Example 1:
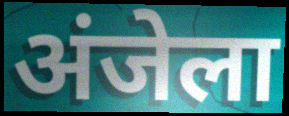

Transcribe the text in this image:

अंजेला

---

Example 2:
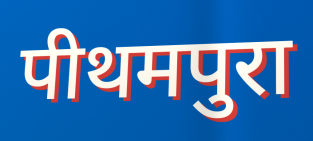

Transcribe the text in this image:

पीथमपुरा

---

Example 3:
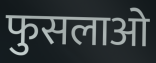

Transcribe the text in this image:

फुसलाओ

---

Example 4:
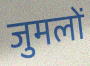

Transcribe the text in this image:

जुमलों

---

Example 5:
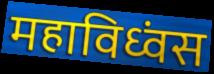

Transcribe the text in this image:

महाविध्वंस